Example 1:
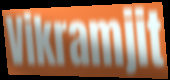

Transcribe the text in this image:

Vikramjit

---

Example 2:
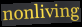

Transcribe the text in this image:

nonliving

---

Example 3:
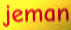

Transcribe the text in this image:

jeman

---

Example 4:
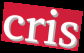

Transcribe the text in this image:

cris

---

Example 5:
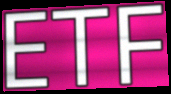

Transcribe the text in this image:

ETF